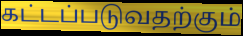
கட்டப்படுவதற்கும்